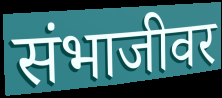
संभाजीवर